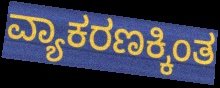
ವ್ಯಾಕರಣಕ್ಕಿಂತ